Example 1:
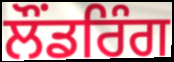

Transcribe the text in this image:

ਲੌਂਡਰਿੰਗ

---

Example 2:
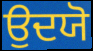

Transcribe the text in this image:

ਉਦਯੋ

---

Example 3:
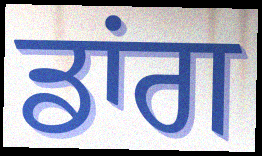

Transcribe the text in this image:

ਡਾਂਗ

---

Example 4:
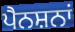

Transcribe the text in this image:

ਪੈਨਸ਼ਨਾਂ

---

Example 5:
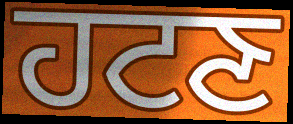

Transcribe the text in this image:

ਹਟਣ